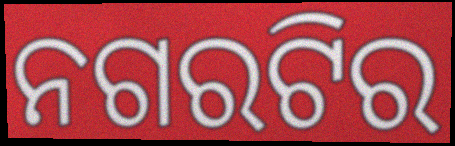
ନଗରଟିର